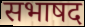
सभाषद